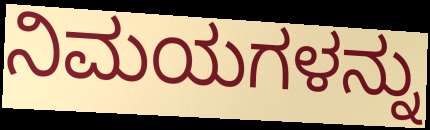
ನಿಮಯಗಳನ್ನು